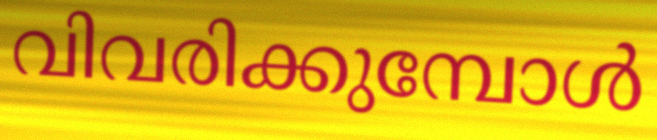
വിവരിക്കുമ്പോൾ